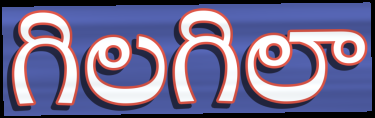
గిలగిలా